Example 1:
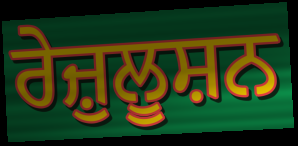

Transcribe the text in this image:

ਰੇਜ਼ੁਲੂਸ਼ਨ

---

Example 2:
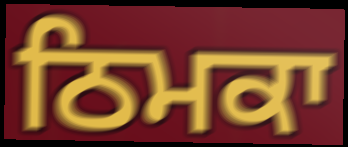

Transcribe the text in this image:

ਠਿਮਕਾ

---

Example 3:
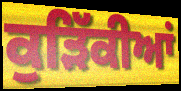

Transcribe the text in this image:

ਕੁੜਿੱਕੀਆਂ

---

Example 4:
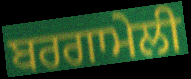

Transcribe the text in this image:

ਬਰਗਾਮੇਲੀ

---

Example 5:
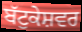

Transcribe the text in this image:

ਬੱਟੁਕੇਸ਼ਵਰ